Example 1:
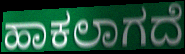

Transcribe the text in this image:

ಹಾಕಲಾಗದೆ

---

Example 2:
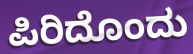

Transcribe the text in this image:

ಪಿರಿದೊಂದು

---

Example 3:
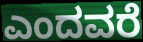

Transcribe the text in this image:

ಎಂದವರೆ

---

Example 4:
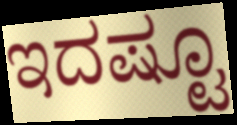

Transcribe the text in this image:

ಇದಷ್ಟೂ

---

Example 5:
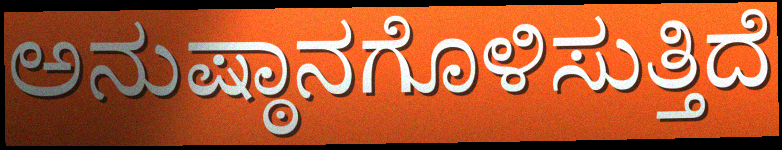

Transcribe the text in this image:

ಅನುಷ್ಠಾನಗೊಳಿಸುತ್ತಿದೆ